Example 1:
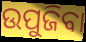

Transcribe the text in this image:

ଉପୁଜିବା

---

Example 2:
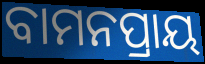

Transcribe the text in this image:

ବାମନପ୍ରାୟ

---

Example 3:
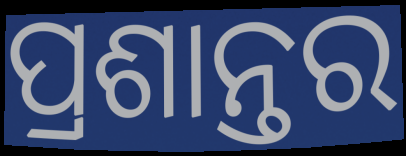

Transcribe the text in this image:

ପ୍ରଶାନ୍ତର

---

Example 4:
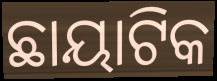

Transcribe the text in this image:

ଛାୟାଟିକ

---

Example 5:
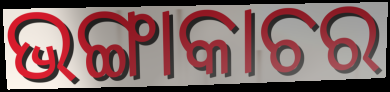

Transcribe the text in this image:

ଭଙ୍ଗାକାଚର